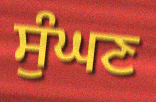
ਸੁੰਘਣ